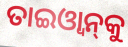
ତାଇଓ୍ବାନ୍‌କୁ